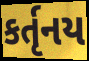
કર્તૃનય